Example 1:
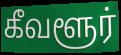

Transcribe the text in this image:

கீவளூர்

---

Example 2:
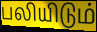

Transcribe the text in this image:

பலியிடும்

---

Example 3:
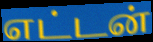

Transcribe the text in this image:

எட்டன்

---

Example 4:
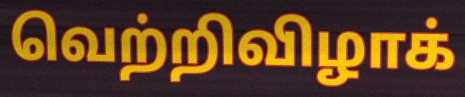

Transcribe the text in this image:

வெற்றிவிழாக்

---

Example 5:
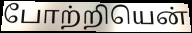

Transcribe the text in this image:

போற்றியென்